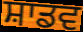
ਸ਼ਾਡਵ